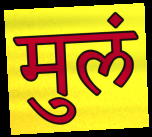
मुलं